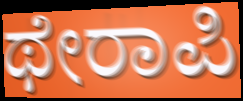
ಥೇರಾಪಿ